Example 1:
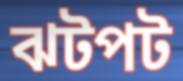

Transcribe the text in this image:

ঝটপট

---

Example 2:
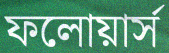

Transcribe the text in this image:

ফলোয়ার্স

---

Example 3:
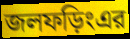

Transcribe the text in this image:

জলফড়িংএর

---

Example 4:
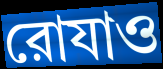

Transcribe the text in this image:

রোযাও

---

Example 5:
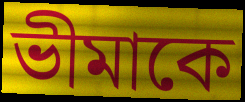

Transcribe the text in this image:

ভীমাকে